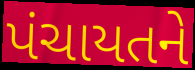
પંચાયતને